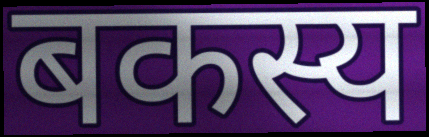
बकस्य